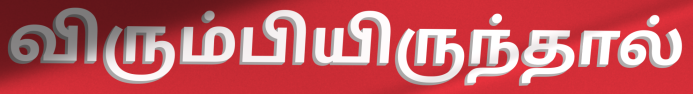
விரும்பியிருந்தால்